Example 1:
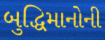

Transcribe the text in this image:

બુદ્ધિમાનોની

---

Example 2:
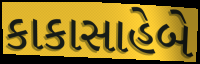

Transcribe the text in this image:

કાકાસાહેબે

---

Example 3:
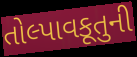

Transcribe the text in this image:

તોલ્પાવકૂતુની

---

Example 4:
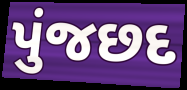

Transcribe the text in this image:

પુંજછદ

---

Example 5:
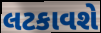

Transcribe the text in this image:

લટકાવશે